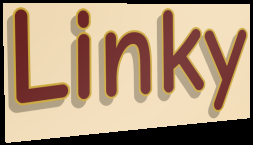
Linky